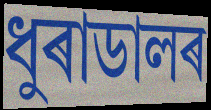
ধুৰাডালৰ